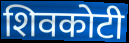
शिवकोटी